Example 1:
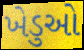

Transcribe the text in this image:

ખેડુઓ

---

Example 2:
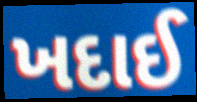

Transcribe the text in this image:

ખદાઈ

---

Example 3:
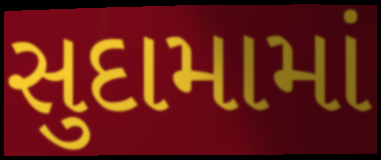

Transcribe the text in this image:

સુદામામાં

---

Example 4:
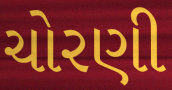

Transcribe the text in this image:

ચોરણી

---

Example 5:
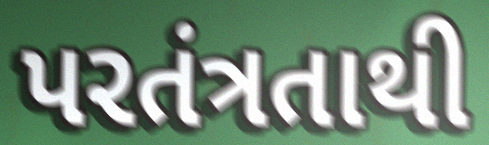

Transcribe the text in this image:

પરતંત્રતાથી